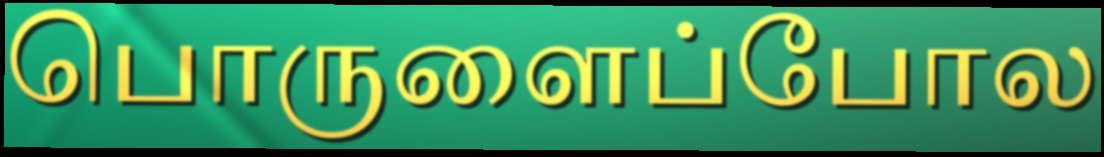
பொருளைப்போல